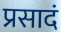
प्रसादं